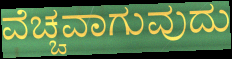
ವೆಚ್ಚವಾಗುವುದು